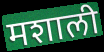
मशाली